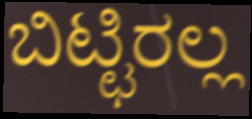
ಬಿಟ್ಟಿರಲ್ಲ